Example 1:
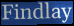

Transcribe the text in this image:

Findlay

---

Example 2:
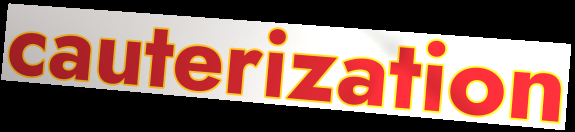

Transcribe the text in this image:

cauterization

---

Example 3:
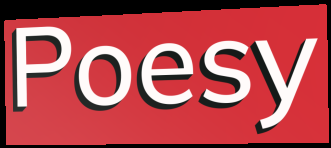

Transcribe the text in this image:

Poesy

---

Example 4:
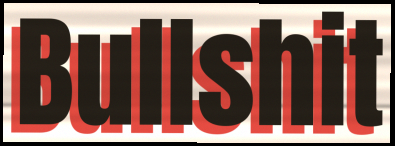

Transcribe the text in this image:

Bullshit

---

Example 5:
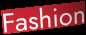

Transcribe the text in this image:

Fashion